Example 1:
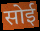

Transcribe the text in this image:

सोई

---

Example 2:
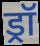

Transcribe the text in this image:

ड्रॉ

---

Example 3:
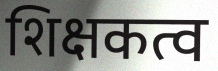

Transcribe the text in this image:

शिक्षकत्व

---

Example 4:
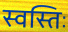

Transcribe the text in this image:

स्वस्तिः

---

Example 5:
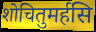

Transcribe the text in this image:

शोचितुमर्हसि